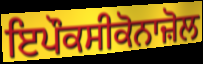
ਇਪੌਕਸੀਕੋਨਾਜ਼ੋਲ